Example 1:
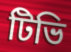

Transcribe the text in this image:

টিভি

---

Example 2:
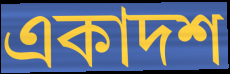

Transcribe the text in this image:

একাদশ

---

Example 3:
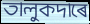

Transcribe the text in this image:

তালুকদাৰে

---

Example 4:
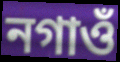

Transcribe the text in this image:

নগাওঁ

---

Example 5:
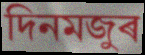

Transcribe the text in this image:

দিনমজুৰ